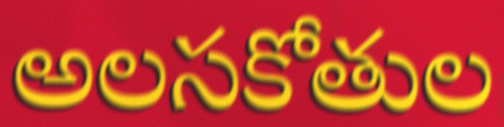
అలసకోతుల